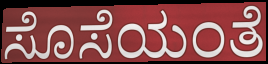
ಸೊಸೆಯಂತೆ